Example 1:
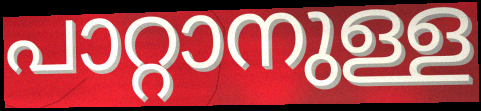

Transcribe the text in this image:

പാറ്റാനുള്ള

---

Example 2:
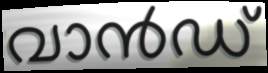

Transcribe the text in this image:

വാൻഡ്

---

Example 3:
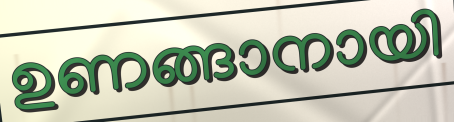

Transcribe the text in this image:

ഉണങ്ങാനായി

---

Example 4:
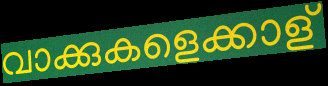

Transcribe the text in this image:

വാക്കുകളെക്കാള്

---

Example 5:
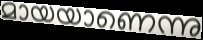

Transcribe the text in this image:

മായയാണെന്നു